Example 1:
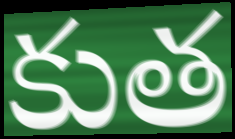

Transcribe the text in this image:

కుత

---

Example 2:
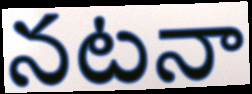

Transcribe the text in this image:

నటనా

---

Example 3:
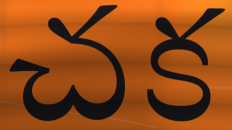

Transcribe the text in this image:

చక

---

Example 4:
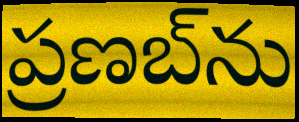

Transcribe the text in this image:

ప్రణబ్‌ను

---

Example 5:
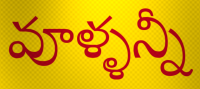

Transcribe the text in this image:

వూళ్ళన్నీ